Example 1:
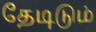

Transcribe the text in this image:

தேடிடும்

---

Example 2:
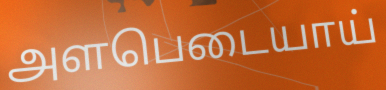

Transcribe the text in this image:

அளபெடையாய்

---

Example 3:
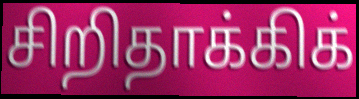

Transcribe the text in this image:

சிறிதாக்கிக்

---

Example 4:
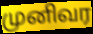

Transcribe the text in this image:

முனிவர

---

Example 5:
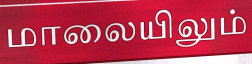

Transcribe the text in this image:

மாலையிலும்